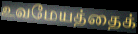
உவமேயத்தைக்